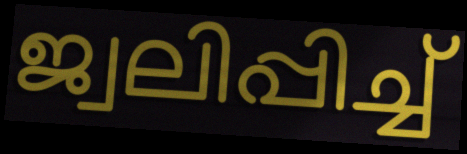
ജ്വലിപ്പിച്ച്